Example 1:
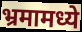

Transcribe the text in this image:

भ्रमामध्ये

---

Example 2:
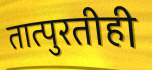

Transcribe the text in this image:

तात्पुरतीही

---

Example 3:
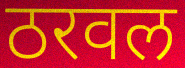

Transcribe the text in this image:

ठरवल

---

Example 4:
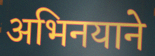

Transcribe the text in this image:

अभिनयाने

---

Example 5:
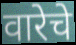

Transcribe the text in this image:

वारेचे